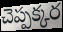
చెప్పక్కర